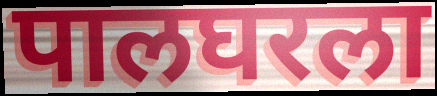
पालघरला